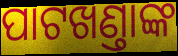
ପାଟଖଣ୍ତାଙ୍କ